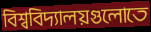
বিশ্ববিদ্যালয়গুলোতে